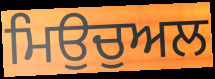
ਮਿਉਚੁਅਲ